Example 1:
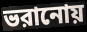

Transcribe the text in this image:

ভরানোয়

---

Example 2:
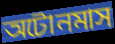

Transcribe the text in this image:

অটোনমাস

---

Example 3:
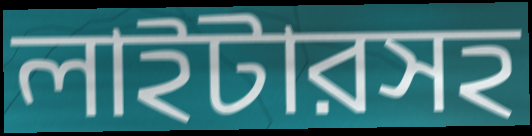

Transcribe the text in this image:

লাইটারসহ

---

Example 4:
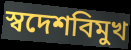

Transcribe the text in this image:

স্বদেশবিমুখ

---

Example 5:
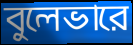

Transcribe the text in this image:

বুলেভারে